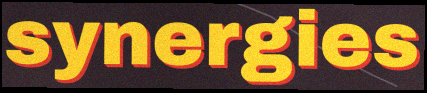
synergies